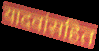
यादवांसहित